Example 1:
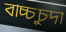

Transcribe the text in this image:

বাচ্চচুদা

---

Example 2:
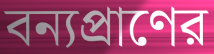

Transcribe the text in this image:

বন্যপ্রাণের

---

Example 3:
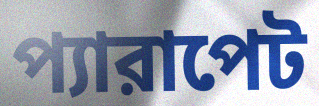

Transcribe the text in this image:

প্যারাপেট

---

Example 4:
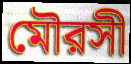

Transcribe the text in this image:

মৌরসী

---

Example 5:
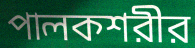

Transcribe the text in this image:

পালকশরীর